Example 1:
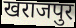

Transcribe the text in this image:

खराजपुर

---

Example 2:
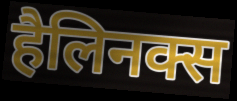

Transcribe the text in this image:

हैलिनक्स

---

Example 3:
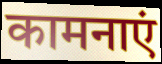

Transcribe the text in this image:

कामनाएं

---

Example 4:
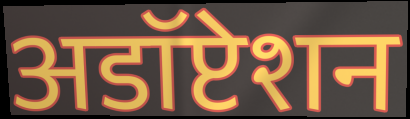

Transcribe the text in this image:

अडॉप्टेशन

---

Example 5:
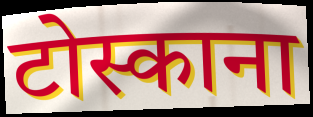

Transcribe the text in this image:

टोस्काना